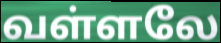
வள்ளலே